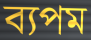
ব্যপম